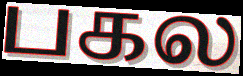
பகல